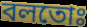
বলতোঃ